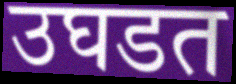
उघडत